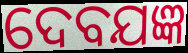
ଦେବଯଜ୍ଞ